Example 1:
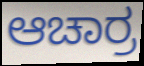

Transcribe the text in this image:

ಆಚಾರ್ರ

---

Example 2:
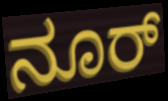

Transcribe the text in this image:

ನೂರ್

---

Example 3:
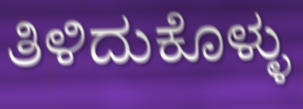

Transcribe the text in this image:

ತಿಳಿದುಕೊಳ್ಳು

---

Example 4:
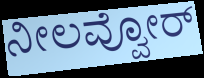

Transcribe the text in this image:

ನೀಲವ್ವೋರ್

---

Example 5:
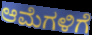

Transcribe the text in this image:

ಆಮೆಗಳಿಗೆ